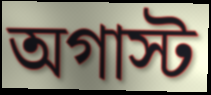
অগাস্ট